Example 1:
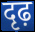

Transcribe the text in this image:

दृढ़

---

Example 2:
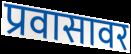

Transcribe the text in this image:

प्रवासावर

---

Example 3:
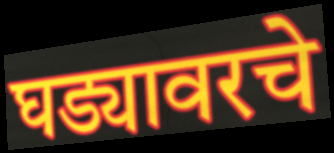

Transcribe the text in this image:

घड्यावरचे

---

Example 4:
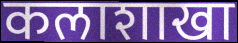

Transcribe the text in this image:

कलाशाखा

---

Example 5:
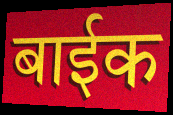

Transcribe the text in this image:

बाईक